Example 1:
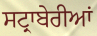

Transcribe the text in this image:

ਸਟ੍ਰਾਬੇਰੀਆਂ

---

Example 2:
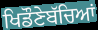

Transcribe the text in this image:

ਖਿਡੌਣੇਬੱਚਿਆਂ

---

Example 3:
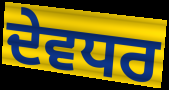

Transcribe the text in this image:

ਦੇਵਧਰ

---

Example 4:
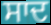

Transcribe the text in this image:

ਸਾਦ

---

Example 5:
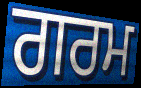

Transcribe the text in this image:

ਗਰਮ